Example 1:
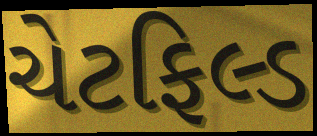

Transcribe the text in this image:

ચેટફિલ્ડ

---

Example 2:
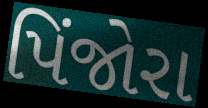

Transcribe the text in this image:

પિંજોરા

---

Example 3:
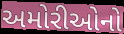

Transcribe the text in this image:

અમોરીઓનો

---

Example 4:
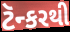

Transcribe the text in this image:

ટૅન્કરથી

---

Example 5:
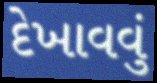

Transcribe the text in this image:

દેખાવવું